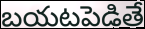
బయటపెడితే